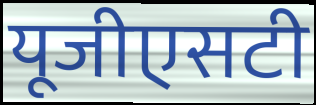
यूजीएसटी